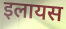
इलायस